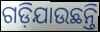
ଗଡ଼ିଯାଉଛନ୍ତି